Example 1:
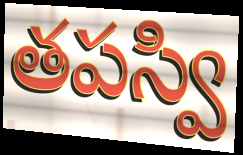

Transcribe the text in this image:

తపస్వి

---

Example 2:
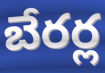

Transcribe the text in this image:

బేరర్ల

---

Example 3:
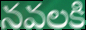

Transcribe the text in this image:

నవలకి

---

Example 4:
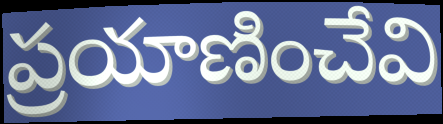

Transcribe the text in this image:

ప్రయాణించేవి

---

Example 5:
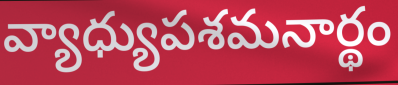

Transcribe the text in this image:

వ్యాధ్యుపశమనార్థం